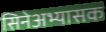
सिनेअभ्यासक